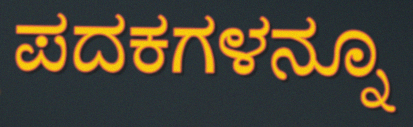
ಪದಕಗಳನ್ನೂ